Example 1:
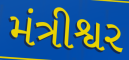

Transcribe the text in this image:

મંત્રીશ્વર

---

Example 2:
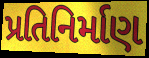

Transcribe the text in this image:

પ્રતિનિર્માણ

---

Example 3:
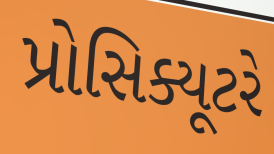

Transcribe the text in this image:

પ્રોસિક્યૂટરે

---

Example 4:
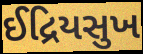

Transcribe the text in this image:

ઈદ્રિયસુખ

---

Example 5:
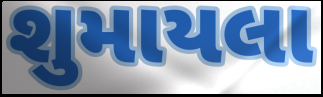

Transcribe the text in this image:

શુમાયલા